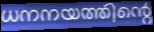
ധനനയത്തിന്റെ